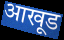
आखूड